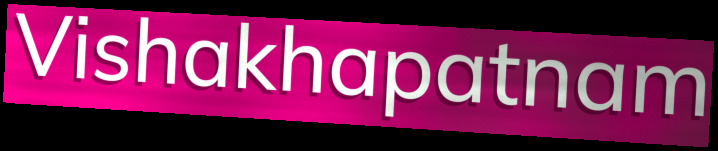
Vishakhapatnam